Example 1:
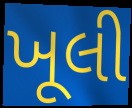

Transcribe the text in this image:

ખૂલી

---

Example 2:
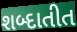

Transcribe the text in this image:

શબ્દાતીત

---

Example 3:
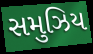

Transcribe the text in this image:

સમુઝિય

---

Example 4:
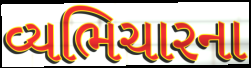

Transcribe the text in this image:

વ્યભિચારના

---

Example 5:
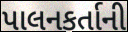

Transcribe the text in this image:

પાલનકર્તાની